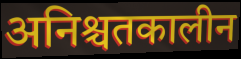
अनिश्चतकालीन